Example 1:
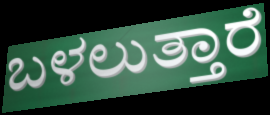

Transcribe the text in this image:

ಬಳಲುತ್ತಾರೆ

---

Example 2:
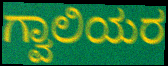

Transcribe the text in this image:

ಗ್ವಾಲಿಯರ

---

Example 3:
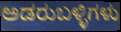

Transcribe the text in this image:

ಅಡರುಬಳ್ಳಿಗಳು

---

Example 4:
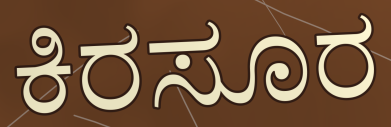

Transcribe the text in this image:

ಕಿರಸೂರ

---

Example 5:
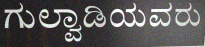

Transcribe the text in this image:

ಗುಲ್ವಾಡಿಯವರು